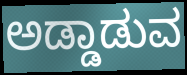
ಅಡ್ಡಾಡುವ